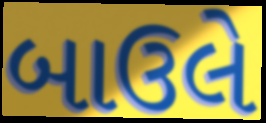
બાઉલે